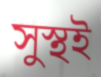
সুস্থই